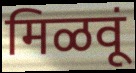
मिळवूं